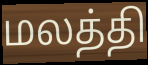
மலத்தி